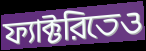
ফ্যাক্টরিতেও